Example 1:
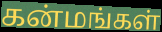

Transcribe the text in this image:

கன்மங்கள்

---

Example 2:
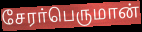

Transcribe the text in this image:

சேரர்பெருமான்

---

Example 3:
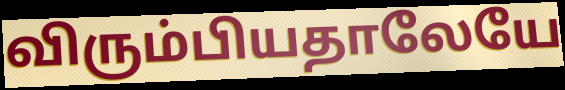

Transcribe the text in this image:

விரும்பியதாலேயே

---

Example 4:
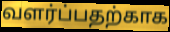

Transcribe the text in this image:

வளர்ப்பதற்காக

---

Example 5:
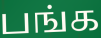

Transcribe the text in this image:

பங்க